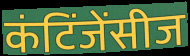
कंटिंजेंसीज